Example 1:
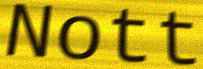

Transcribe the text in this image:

Nott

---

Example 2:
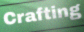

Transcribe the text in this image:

Crafting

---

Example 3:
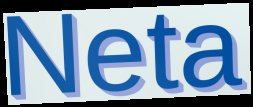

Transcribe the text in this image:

Neta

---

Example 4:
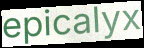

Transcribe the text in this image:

epicalyx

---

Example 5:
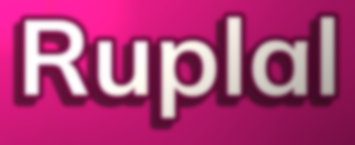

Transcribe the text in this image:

Ruplal